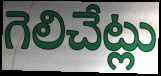
గెలిచేట్లు